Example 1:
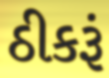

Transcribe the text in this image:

ઠીકરૂં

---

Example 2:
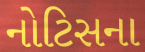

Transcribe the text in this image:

નોટિસના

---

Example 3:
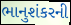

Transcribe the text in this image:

ભાનુશંકરની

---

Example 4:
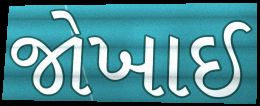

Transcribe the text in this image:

જોખાઈ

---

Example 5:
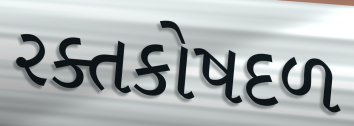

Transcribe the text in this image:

રક્તકોષદળ